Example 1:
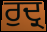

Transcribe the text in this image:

ਰੁਦ੍ਰ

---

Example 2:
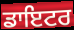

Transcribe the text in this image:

ਡਾਇਟਰ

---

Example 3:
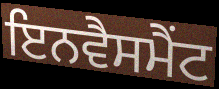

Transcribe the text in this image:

ਇਨਵੈਸਮੈਂਟ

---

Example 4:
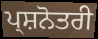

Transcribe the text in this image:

ਪ੍ਸ਼ਨੋਤਰੀ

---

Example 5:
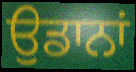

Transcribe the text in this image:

ਉਡਾਨਾਂ